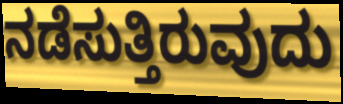
ನಡೆಸುತ್ತಿರುವುದು